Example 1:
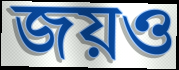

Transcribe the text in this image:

জয়ও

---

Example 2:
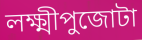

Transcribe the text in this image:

লক্ষ্মীপুজোটা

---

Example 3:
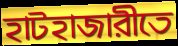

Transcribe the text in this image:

হাটহাজারীতে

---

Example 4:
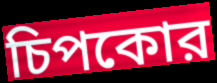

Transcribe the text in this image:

চিপকোর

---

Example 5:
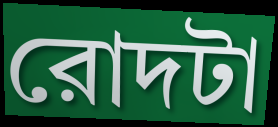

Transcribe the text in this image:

রোদটা